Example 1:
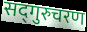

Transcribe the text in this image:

सद्‍गुरुचरण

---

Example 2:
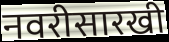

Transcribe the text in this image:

नवरीसारखी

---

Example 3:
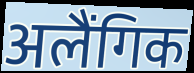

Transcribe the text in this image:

अलैंगिक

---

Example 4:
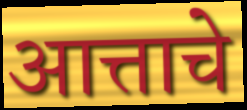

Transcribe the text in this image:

आत्ताचे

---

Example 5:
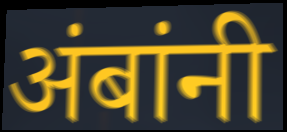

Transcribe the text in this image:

अंबांनी